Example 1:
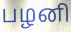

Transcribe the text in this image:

பழனி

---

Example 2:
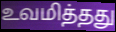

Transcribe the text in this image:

உவமித்தது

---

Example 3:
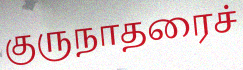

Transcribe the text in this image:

குருநாதரைச்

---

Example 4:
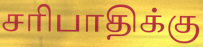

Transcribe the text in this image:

சரிபாதிக்கு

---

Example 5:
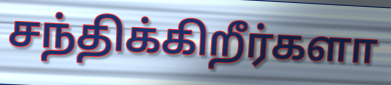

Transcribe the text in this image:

சந்திக்கிறீர்களா